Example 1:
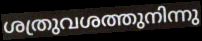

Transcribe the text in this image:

ശത്രുവശത്തുനിന്നു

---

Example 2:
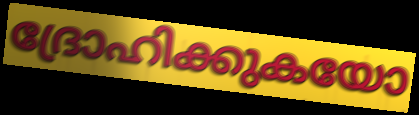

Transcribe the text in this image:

ദ്രോഹിക്കുകയോ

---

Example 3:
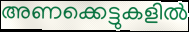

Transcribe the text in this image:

അണക്കെട്ടുകളിൽ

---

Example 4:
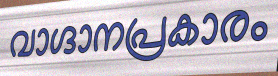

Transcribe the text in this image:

വാഗ്ദാനപ്രകാരം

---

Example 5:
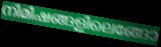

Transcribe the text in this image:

നിമിഷങ്ങളിലെങ്ങോ